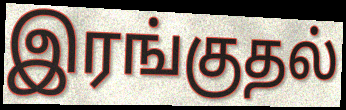
இரங்குதல்